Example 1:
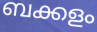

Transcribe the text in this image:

ബക്കളം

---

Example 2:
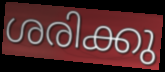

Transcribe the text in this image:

ശരിക്കു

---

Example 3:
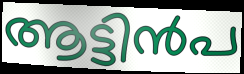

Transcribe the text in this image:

ആട്ടിൻപ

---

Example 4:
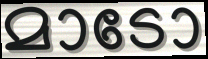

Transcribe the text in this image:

മാടോ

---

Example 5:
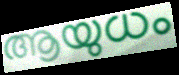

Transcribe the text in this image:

ആയുധം